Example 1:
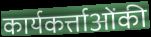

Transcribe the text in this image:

कार्यकर्त्ताओंकी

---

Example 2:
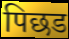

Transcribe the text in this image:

पिछड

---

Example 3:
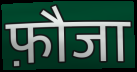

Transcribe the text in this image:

फ़ौजा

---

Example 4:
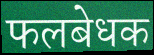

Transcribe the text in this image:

फलबेधक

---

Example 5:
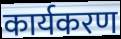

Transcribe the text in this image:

कार्यकरण